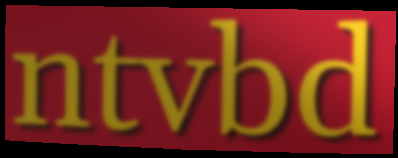
ntvbd